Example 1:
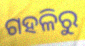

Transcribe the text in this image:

ଗହଳିରୁ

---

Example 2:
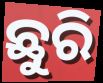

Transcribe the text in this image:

ଛୁରି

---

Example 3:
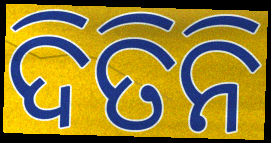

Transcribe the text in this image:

ଦିତିନି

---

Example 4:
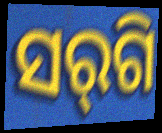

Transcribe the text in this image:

ସର୍‌ଗି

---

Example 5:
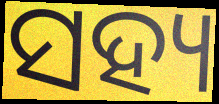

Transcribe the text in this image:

ସହ୍ୟ